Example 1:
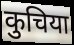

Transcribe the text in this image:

कुचिया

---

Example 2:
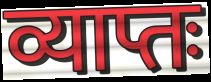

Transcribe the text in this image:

व्याप्तः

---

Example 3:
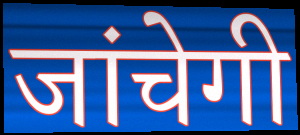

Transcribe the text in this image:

जांचेगी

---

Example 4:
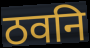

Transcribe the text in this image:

ठवनि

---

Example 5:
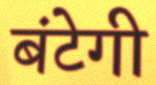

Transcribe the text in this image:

बंटेगी